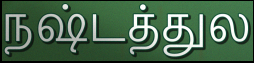
நஷ்டத்துல